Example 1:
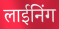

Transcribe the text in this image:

लाईनिंग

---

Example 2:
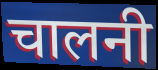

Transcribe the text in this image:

चालनी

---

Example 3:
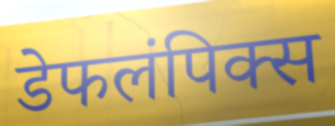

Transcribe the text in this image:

डेफलंपिक्स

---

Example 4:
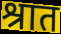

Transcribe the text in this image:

श्रात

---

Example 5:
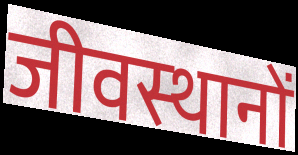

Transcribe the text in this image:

जीवस्थानों